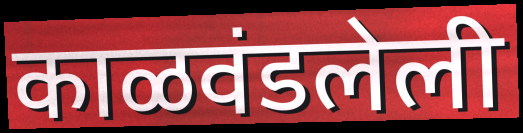
काळवंडलेली